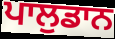
ਪਾਲੁਡਾਨ